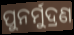
ପୁନର୍ମୁଦ୍ରଣ